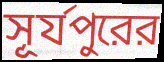
সূর্যপুরের